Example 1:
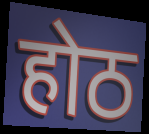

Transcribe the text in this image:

होठ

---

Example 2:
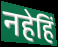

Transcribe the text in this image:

नहेहिं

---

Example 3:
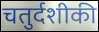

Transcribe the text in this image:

चतुर्दशीकी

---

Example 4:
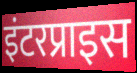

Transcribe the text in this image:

इंटरप्राइस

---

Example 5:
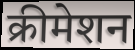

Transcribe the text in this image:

क्रीमेशन